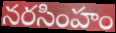
నరసింహం